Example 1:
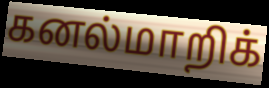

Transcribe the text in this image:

கனல்மாறிக்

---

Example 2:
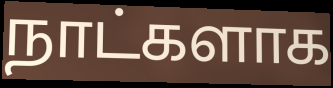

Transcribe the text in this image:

நாட்களாக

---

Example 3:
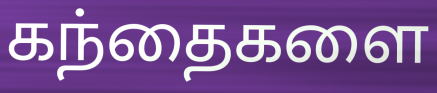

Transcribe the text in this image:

கந்தைகளை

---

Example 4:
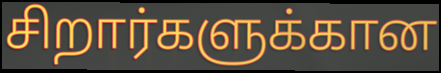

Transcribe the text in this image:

சிறார்களுக்கான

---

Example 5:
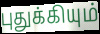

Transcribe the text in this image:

புதுக்கியும்